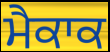
ਮੈਕਾਕ